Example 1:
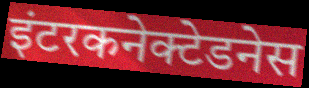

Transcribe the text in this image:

इंटरकनेक्टेडनेस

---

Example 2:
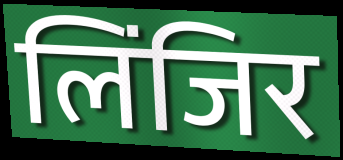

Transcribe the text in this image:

लिंजिर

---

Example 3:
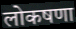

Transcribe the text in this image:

लोकषणा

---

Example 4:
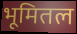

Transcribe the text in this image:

भूमितल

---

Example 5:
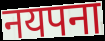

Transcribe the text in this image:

नयपना